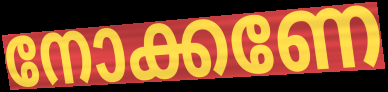
നോക്കണേ